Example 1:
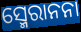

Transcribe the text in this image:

ସ୍ମେରାନନା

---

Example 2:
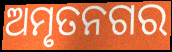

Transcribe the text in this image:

ଅମୃତନଗର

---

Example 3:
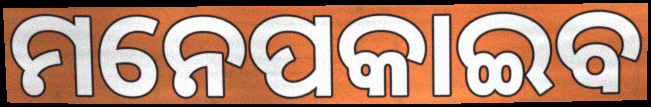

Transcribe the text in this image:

ମନେପକାଇବ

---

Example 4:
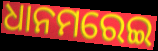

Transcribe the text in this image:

ଧାନମରେଇ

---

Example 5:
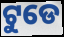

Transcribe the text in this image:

ଟୁଡେ